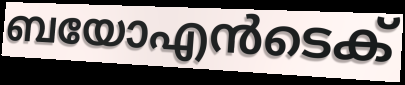
ബയോഎൻടെക്